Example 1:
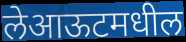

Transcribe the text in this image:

लेआऊटमधील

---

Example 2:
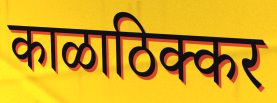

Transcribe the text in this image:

काळाठिक्कर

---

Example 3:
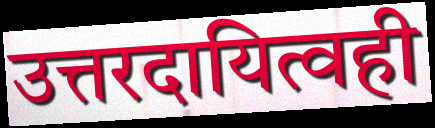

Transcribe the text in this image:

उत्तरदायित्वही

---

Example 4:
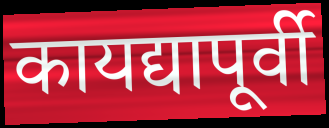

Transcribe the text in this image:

कायद्यापूर्वी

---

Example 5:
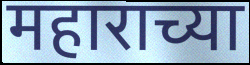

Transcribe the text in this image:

महाराच्या